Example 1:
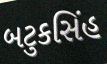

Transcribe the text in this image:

બટુકસિંહ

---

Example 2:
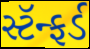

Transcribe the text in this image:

સ્ટૅન્ફર્ડ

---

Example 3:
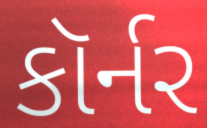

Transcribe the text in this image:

કૉર્નર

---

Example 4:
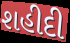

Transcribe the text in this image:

શહીદી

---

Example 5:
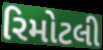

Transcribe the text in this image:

રિમોટલી